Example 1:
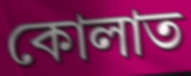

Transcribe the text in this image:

কোলাত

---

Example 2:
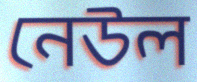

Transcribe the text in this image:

নেউল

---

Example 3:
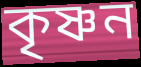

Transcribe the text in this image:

কৃষ্ণন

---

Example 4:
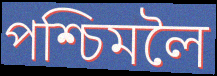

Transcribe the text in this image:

পশ্চিমলৈ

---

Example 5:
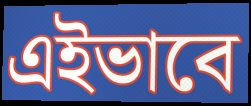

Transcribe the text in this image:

এইভাবে